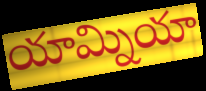
యామ్నియా